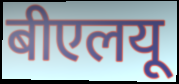
बीएलयू